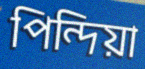
পিন্দিয়া